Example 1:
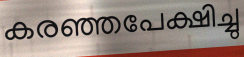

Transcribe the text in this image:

കരഞ്ഞപേക്ഷിച്ചു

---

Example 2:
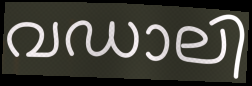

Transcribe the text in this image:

വഡാലി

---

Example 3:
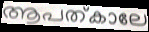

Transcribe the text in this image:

ആപത്കാലേ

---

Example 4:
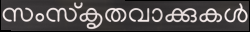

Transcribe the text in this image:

സംസ്കൃതവാക്കുകൾ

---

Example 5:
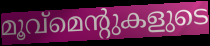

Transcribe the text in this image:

മൂവ്മെന്റുകളുടെ